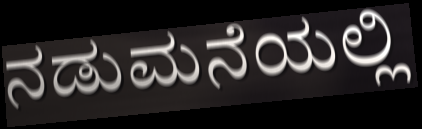
ನಡುಮನೆಯಲ್ಲಿ